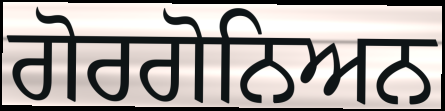
ਗੋਰਗੋਨਿਅਨ